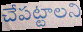
చేపట్టాలని